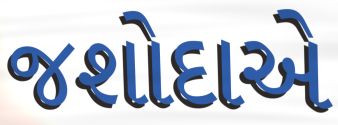
જશોદાએ